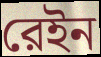
রেইন